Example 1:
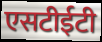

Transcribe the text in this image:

एसटीईटी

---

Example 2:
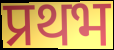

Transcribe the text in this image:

प्रथभ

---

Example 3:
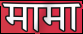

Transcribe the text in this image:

मामा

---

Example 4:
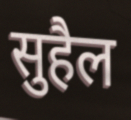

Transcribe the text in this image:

सुहैल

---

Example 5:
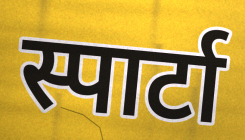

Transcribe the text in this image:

स्पार्टा